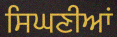
ਸਿਘਣੀਆਂ